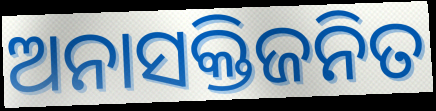
ଅନାସକ୍ତିଜନିତ